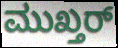
ಮುಖ್ತರ್